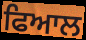
ਫਿਆਲ